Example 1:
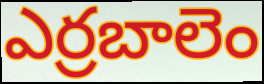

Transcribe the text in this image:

ఎర్రబాలెం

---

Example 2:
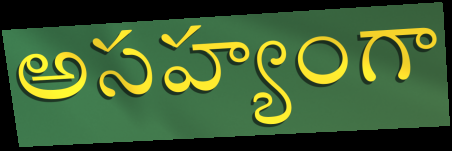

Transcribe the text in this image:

అసహ్యంగా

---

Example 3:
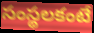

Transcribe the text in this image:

సంస్థలకంటే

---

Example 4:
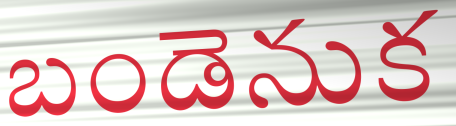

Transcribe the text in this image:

బండెనుక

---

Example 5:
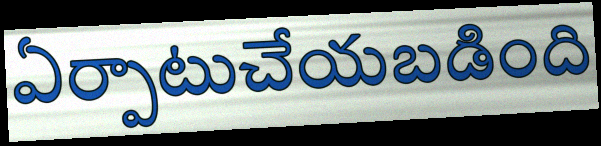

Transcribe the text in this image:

ఏర్పాటుచేయబడింది